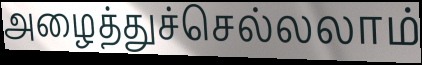
அழைத்துச்செல்லலாம்